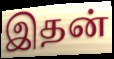
இதன்